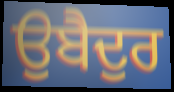
ਉਬੈਦੁਰ